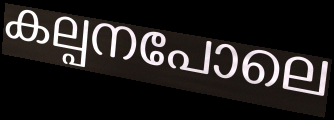
കല്പനപോലെ